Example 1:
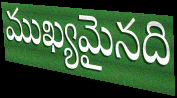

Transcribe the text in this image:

ముఖ్యమైనది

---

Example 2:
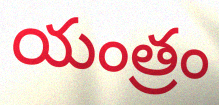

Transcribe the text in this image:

యంత్రం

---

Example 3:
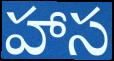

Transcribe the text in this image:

హాస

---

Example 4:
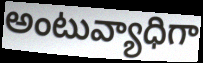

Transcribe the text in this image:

అంటువ్యాధిగా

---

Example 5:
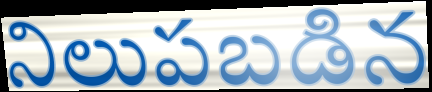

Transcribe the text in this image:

నిలుపబడిన